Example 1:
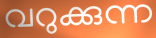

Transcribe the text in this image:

വറുക്കുന്ന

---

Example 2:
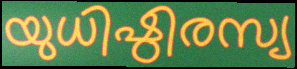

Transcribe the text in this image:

യുധിഷ്ഠിരസ്യ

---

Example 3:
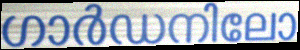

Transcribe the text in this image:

ഗാർഡനിലോ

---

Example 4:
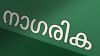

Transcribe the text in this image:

നാഗരിക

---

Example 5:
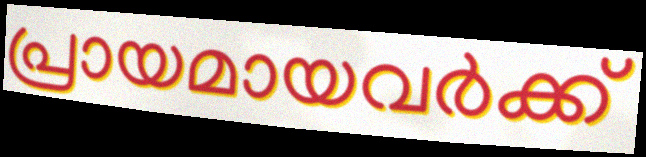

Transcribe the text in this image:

പ്രായമായവർക്ക്